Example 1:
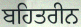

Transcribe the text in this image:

ਬਹਿਤਰੀਨ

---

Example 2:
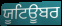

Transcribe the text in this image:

ਯੂਟਿਊਬਰ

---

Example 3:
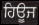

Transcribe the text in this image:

ਹਿਊਜ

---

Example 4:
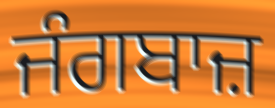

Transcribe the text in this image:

ਜੰਗਬਾਜ਼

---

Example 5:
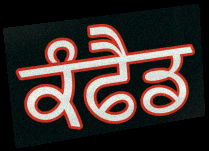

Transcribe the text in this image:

ਕੰਫੈਡ